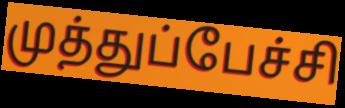
முத்துப்பேச்சி